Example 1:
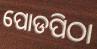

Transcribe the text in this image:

ପୋଡପିଠା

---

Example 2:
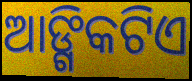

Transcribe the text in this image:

ଆଙ୍ଗିକଟିଏ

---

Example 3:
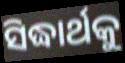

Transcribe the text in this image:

ସିଦ୍ଧାର୍ଥକୁ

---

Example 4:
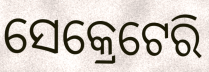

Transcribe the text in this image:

ସେକ୍ରେଟେରି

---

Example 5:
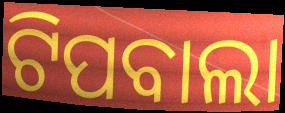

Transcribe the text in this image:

ଟିପବାଲା